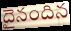
దైనందిన